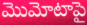
మొమోటాపై